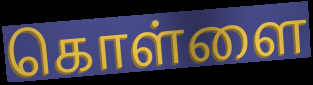
கொள்ளை